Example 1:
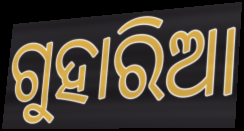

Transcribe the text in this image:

ଗୁହାରିଆ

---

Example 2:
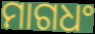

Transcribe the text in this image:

ମାଗଧଂ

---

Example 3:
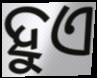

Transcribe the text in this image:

ହୁଏ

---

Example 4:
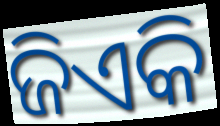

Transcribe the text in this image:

ଜିଏକି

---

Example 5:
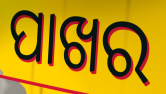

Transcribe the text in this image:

ପାଖର